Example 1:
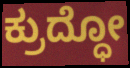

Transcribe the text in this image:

ಕ್ರುದ್ಧೋ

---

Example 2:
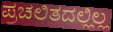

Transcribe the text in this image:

ಪ್ರಚಲಿತದಲ್ಲಿಲ್ಲ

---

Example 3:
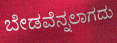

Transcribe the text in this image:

ಬೇಡವೆನ್ನಲಾಗದು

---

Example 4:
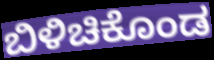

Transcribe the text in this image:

ಬಿಳಿಚಿಕೊಂಡ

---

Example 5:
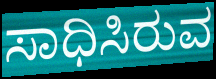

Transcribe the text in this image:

ಸಾಧಿಸಿರುವ